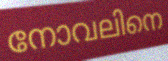
നോവലിനെ